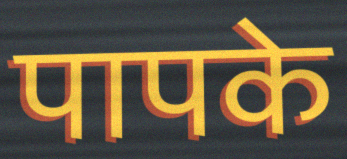
पापके